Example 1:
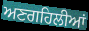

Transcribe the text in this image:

ਅਣਗਹਿਲੀਆਂ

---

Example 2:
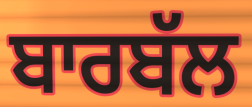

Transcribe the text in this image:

ਬਾਰਬੱਲ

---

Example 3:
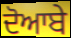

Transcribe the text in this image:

ਦੋਆਬੇ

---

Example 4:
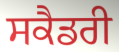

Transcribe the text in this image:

ਸਕੈਡਰੀ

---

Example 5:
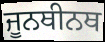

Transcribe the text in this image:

ਜੂਨਥੀਨਥ